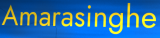
Amarasinghe